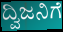
ದ್ವಿಜನಿಗೆ